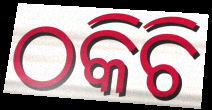
ଠକିଚି